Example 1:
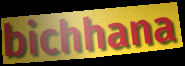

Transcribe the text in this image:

bichhana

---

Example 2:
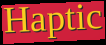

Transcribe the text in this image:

Haptic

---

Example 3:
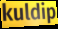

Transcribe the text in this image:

kuldip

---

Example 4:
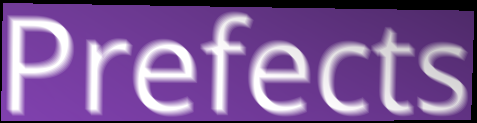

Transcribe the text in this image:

Prefects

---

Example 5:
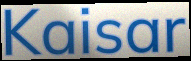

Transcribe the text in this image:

Kaisar